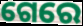
ଗେରେ